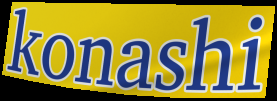
konashi